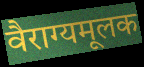
वैराग्यमूलक